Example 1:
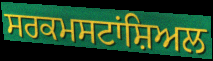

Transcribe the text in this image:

ਸਰਕਮਸਟਾਂਸ਼ਿਅਲ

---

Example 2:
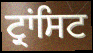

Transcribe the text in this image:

ਟ੍ਰਾਂਸਿਟ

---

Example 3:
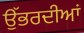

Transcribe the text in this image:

ਉੱਭਰਦੀਆਂ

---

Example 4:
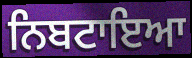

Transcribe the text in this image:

ਨਿਬਟਾਇਆ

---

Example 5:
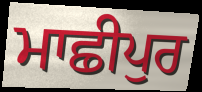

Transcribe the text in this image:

ਮਾਛੀਪੁਰ